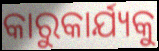
କାରୁକାର୍ଯ୍ୟକୁ